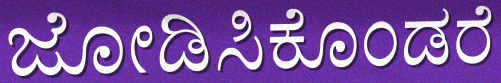
ಜೋಡಿಸಿಕೊಂಡರೆ